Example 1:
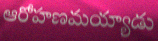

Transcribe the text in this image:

ఆరోహణమయ్యాడు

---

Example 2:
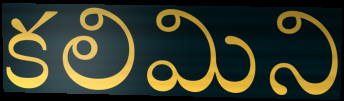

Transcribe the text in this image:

కలిమిని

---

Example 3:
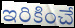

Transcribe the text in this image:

ఇరికించే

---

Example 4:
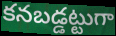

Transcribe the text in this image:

కనబడ్డట్టుగా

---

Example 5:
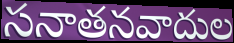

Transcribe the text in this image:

సనాతనవాదుల